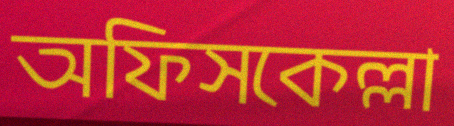
অফিসকেল্লা